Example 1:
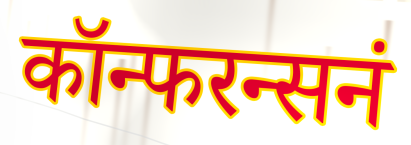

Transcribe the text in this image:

कॉन्फरन्सनं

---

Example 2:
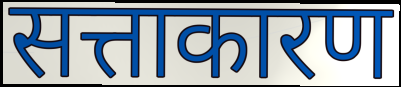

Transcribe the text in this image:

सत्ताकारण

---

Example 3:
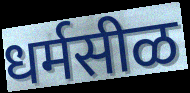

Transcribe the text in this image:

धर्मसीळ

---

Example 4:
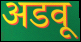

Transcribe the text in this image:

अडवू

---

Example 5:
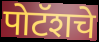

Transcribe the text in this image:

पोटॅशचे